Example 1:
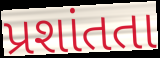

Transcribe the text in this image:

પ્રશાંતતા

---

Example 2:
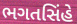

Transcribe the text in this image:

ભગતસિંહે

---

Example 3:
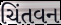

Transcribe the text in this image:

ચિંતવન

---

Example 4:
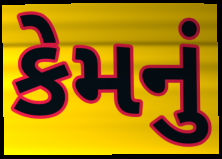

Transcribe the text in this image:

કેમનું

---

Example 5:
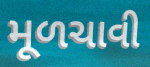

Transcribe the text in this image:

મૂળચાવી